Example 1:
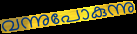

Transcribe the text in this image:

വന്നുപോകുന്നു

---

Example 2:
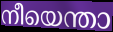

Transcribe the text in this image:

നീയെന്താ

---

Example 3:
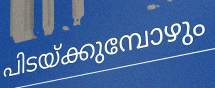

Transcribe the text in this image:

പിടയ്ക്കുമ്പോഴും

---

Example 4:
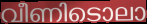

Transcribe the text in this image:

വീണിടൊലാ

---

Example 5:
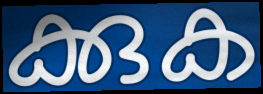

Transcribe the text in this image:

ക്കുക